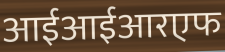
आईआईआरएफ